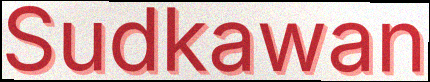
Sudkawan